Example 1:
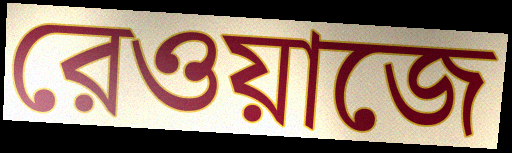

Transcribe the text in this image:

রেওয়াজে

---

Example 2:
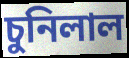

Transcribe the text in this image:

চুনিলাল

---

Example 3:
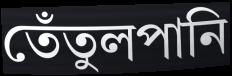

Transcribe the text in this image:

তেঁতুলপানি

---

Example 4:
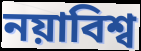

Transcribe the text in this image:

নয়াবিশ্ব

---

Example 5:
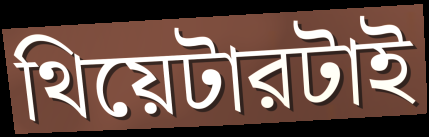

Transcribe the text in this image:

থিয়েটারটাই